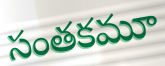
సంతకమూ